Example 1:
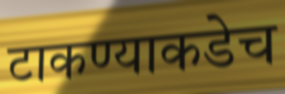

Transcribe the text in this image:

टाकण्याकडेच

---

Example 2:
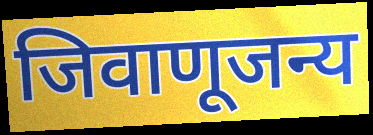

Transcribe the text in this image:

जिवाणूजन्य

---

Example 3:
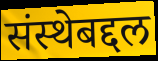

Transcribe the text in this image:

संस्थेबद्दल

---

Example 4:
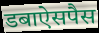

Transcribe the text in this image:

डबाऐसपैस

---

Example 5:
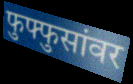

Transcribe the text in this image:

फुफ्फुसांवर